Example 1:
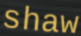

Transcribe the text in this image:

shaw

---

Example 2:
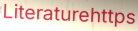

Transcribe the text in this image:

Literaturehttps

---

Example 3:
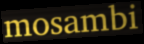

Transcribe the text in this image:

mosambi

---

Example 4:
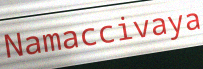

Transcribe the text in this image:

Namaccivaya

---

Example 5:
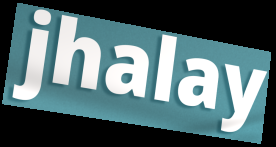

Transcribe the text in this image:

jhalay